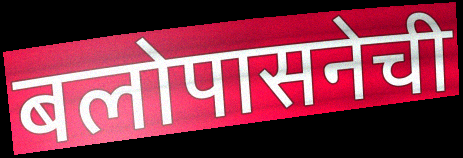
बलोपासनेची